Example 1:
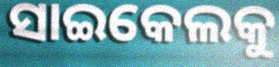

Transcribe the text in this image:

ସାଇକେଲକୁ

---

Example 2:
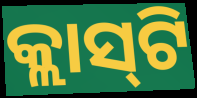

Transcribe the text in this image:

କ୍ଲାସ୍‌ଟି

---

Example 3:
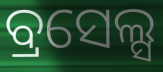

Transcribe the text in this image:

ବ୍ରସେଲ୍ସ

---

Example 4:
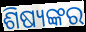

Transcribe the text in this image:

ଶିଷ୍ୟଙ୍କର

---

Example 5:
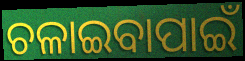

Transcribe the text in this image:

ଚଳାଇବାପାଇଁ